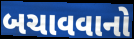
બચાવવાનો